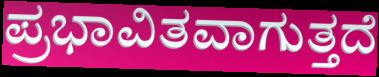
ಪ್ರಭಾವಿತವಾಗುತ್ತದೆ